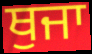
ਥੁਜਾ